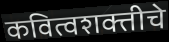
कवित्वशक्तीचे